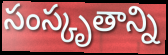
సంస్కృతాన్ని